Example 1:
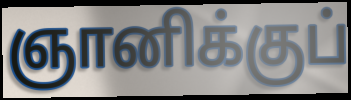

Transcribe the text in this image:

ஞானிக்குப்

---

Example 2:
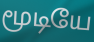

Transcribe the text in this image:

மூடியே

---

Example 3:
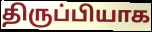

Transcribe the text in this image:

திருப்பியாக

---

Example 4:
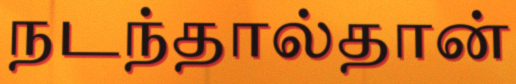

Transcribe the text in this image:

நடந்தால்தான்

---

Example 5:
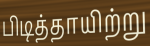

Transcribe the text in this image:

பிடித்தாயிற்று